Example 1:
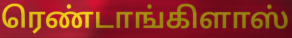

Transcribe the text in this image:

ரெண்டாங்கிளாஸ்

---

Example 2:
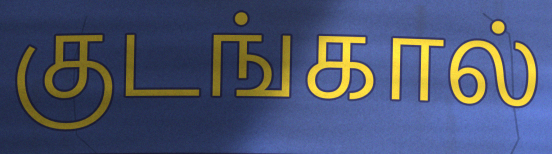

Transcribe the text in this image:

குடங்கால்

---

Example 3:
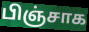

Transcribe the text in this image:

பிஞ்சாக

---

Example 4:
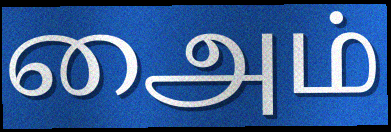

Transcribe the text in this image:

அைம்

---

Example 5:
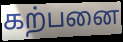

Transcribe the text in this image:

கற்பனை